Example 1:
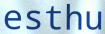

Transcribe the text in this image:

esthu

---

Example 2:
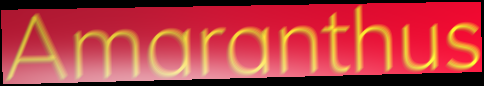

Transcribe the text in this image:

Amaranthus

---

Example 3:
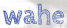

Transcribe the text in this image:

wahe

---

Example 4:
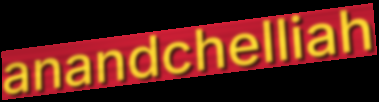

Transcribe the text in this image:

anandchelliah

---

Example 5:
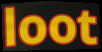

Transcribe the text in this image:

loot